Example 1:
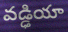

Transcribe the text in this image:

వడ్ఢియా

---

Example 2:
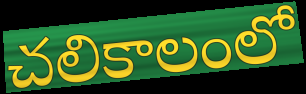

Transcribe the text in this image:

చలికాలంలో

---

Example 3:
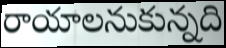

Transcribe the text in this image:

రాయాలనుకున్నది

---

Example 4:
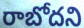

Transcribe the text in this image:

రాబోదని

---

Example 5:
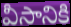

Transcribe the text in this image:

వీసానికి